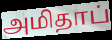
அமிதாப்